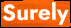
Surely